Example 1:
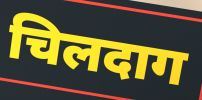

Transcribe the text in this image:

चिलदाग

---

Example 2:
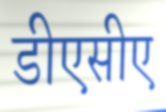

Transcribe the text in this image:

डीएसीए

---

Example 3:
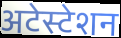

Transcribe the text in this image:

अटेस्टेशन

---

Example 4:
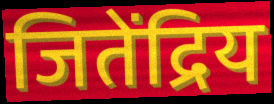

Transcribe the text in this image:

जितेंद्रिय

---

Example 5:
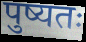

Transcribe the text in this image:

पुष्यतः